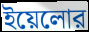
ইয়েলোর